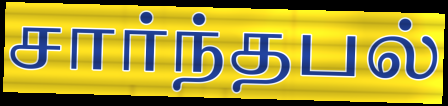
சார்ந்தபல்